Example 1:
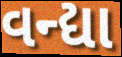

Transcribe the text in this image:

વન્દ્યા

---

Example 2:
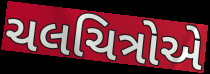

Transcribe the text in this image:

ચલચિત્રોએ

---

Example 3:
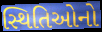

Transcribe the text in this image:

સ્થિતિઓનો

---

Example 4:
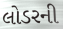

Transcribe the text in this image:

લોડરની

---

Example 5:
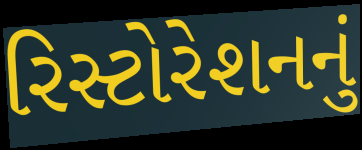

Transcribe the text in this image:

રિસ્ટોરેશનનું